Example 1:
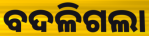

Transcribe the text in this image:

ବଦଳିଗଲା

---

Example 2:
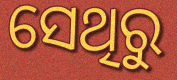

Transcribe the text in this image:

ସେଥିରୁ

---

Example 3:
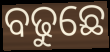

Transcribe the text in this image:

ବଢୁଛେ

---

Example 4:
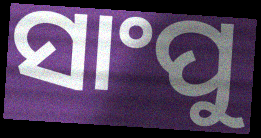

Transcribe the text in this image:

ସାଂପୁ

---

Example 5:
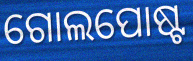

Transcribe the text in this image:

ଗୋଲପୋଷ୍ଟ